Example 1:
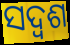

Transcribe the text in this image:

ସଦ୍ଵଶ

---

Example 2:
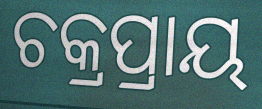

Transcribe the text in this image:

ଚକ୍ରପ୍ରାୟ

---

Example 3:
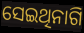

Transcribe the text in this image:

ସେଇଥିନାଗି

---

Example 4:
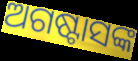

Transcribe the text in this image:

ଅଗଷ୍ଟାସଙ୍କ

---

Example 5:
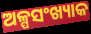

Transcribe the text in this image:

ଅଳ୍ପସଂଖ୍ୟାକ